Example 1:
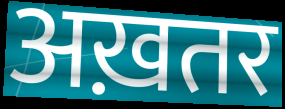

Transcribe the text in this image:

अख़तर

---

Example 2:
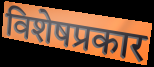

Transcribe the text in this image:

विशेषप्रकार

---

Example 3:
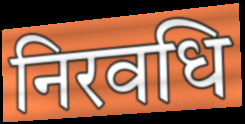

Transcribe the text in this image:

निरवधि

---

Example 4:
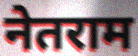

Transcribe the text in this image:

नेतराम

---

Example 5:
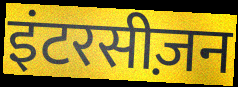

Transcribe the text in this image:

इंटरसीज़न